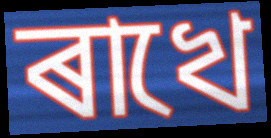
ৰাখে